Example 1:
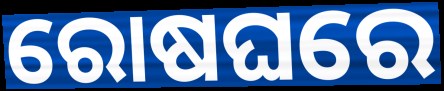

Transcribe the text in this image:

ରୋଷଘରେ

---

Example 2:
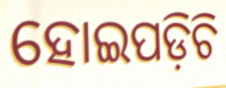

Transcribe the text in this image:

ହୋଇପଡ଼ିଚି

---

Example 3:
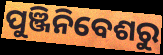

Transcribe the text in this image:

ପୁଞ୍ଜିନିବେଶରୁ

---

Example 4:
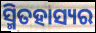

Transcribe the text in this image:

ସ୍ମିତହାସ୍ୟର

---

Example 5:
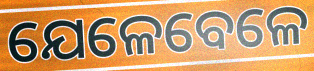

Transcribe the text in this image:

ଯେଳେବେଳେ